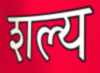
शल्‍य